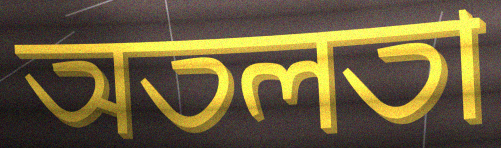
অতলতা